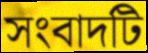
সংবাদটি